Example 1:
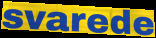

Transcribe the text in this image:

svarede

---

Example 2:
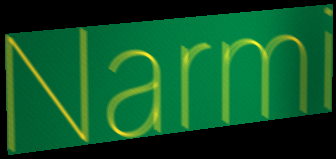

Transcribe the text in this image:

Narmi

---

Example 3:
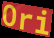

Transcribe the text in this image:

Ori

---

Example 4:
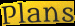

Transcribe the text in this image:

Plans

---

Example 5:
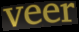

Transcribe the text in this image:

veer